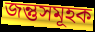
জন্তুসমূহক